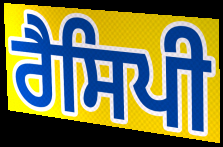
ਰੈਸਿਪੀ